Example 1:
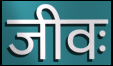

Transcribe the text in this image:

जीवः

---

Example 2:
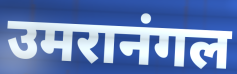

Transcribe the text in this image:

उमरानंगल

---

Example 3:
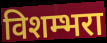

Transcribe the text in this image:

विशम्भरा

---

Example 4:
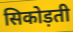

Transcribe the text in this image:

सिकोड़ती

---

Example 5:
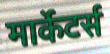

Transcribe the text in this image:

मार्केटर्स